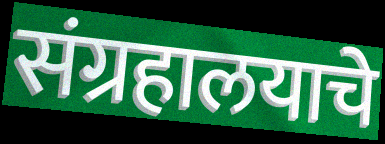
संग्रहालयाचे